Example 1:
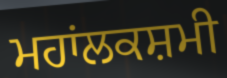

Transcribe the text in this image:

ਮਹਾਂਲਕਸ਼ਮੀ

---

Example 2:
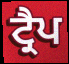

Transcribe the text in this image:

ਟ੍ਰੈਪ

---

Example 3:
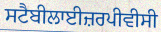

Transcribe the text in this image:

ਸਟੈਬੀਲਾਈਜ਼ਰਪੀਵੀਸੀ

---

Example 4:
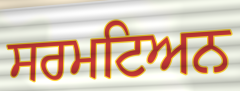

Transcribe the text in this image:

ਸਰਮਟਿਅਨ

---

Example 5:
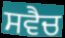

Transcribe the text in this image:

ਸਵੈਚ